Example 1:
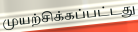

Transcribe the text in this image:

முயற்சிக்கப்பட்டது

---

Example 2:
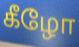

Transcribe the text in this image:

கீழோ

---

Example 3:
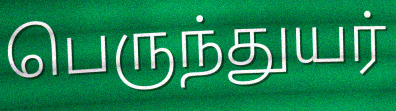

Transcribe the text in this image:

பெருந்துயர்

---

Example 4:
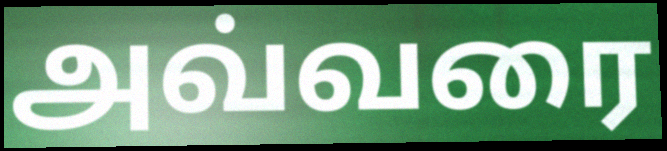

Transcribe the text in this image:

அவ்வரை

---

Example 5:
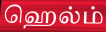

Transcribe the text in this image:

ஹெல்ம்